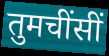
तुमचींसीं